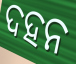
ଦହନ